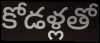
కోడళ్లతో